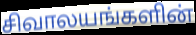
சிவாலயங்களின்